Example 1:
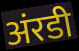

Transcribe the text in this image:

अंरडी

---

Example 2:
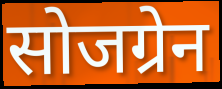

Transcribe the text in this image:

सोजग्रेन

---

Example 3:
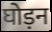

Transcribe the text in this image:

घोड़न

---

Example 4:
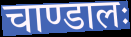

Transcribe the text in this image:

चाण्डालः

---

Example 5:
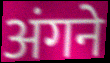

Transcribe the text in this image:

अंगने